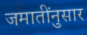
जमातींनुसार